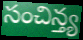
సంచిన్త్య